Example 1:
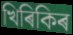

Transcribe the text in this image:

খিৰিকিৰ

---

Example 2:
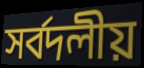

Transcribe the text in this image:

সৰ্বদলীয়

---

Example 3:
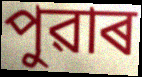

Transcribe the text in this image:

পুৱাৰ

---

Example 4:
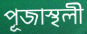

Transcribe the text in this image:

পূজাস্থলী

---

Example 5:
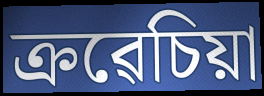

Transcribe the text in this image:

ক্ৰৱেচিয়া